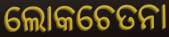
ଲୋକଚେତନା